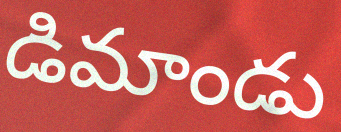
డిమాండు